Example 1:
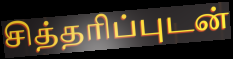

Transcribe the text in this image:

சித்தரிப்புடன்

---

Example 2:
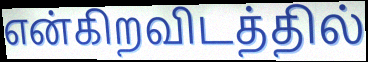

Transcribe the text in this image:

என்கிறவிடத்தில்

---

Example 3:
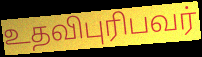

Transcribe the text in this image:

உதவிபுரிபவர்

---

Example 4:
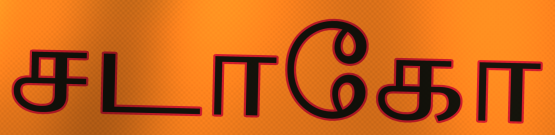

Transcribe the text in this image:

சடாகோ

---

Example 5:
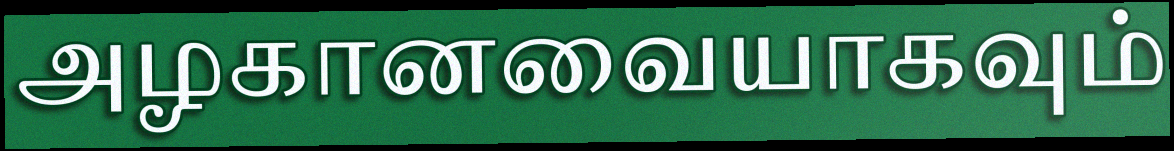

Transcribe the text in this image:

அழகானவையாகவும்